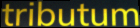
tributum